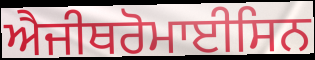
ਐਜੀਥਰੋਮਾਈਸਿਨ